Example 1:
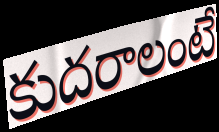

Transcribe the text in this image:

కుదరాలంటే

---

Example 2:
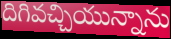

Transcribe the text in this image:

దిగివచ్చియున్నాను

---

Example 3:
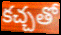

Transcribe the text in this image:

కచ్చతో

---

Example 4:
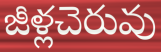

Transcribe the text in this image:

జీళ్లచెరువు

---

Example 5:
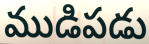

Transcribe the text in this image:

ముడిపడు